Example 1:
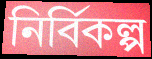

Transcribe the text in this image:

নির্বিকল্প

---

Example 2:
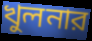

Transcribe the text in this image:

খুলনার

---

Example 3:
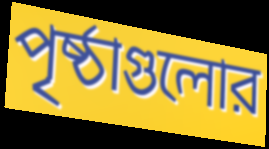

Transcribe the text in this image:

পৃষ্ঠাগুলোর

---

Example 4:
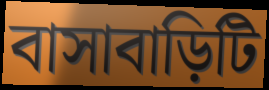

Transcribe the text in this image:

বাসাবাড়িটি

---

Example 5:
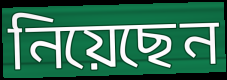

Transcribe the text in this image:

নিয়েছেন